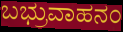
ಬಭ್ರುವಾಹನಂ